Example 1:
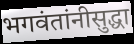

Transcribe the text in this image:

भगवंतांनीसुद्धा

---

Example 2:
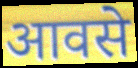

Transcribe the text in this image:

आवसे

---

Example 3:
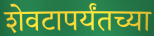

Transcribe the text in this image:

शेवटापर्यंतच्या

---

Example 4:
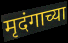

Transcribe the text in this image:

मृदंगाच्या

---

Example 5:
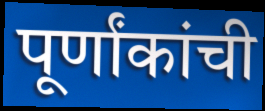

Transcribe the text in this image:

पूर्णांकांची